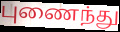
புணைந்து